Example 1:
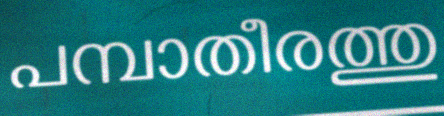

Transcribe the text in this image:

പമ്പാതീരത്തു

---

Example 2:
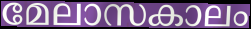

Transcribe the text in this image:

മേലാസകാലം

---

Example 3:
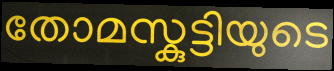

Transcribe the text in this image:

തോമസ്കുട്ടിയുടെ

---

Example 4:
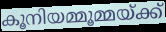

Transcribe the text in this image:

കൂനിയമ്മൂമ്മയ്ക്ക്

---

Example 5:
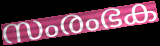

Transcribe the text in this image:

സംരംഭക